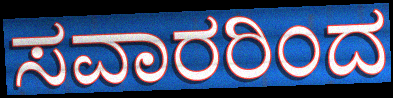
ಸವಾರರಿಂದ